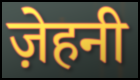
ज़ेहनी